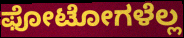
ಫೋಟೋಗಳೆಲ್ಲ